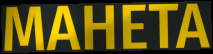
MAHETA